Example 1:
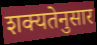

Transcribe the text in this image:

शक्यतेनुसार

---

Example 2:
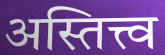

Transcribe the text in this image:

अस्तित्त्व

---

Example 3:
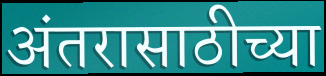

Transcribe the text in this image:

अंतरासाठीच्या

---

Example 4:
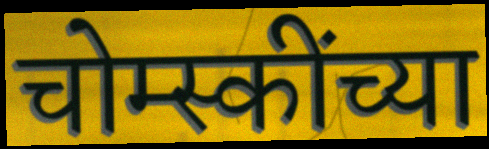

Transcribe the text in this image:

चोम्स्कींच्या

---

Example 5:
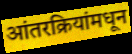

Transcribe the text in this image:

आंतरक्रियांमधून